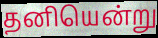
தனியென்று